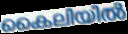
കൈലിയിൽ